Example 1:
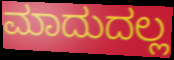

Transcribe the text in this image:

ಮಾದುದಲ್ಲ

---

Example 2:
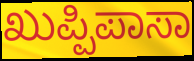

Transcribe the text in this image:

ಖುಪ್ಪಿಪಾಸಾ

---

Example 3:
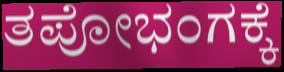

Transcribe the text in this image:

ತಪೋಭಂಗಕ್ಕೆ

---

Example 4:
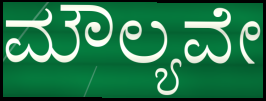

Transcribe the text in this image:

ಮೌಲ್ಯವೇ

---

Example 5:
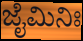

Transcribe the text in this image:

ಜೈಮಿನಿಃ